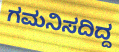
ಗಮನಿಸದಿದ್ದ